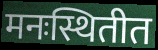
मनःस्थितीत